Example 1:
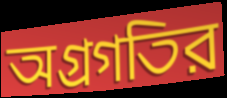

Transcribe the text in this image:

অগ্রগতির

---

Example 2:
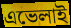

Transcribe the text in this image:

এভেলাই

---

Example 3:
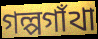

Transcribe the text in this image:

গল্পগাঁথা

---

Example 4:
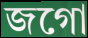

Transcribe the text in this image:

জগো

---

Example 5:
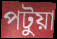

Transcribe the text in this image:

পটুয়া